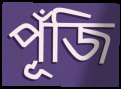
পূঁজি